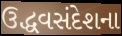
ઉદ્ધવસંદેશના